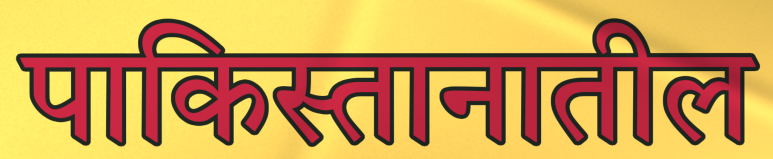
पाकिस्‍तानातील